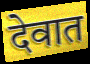
देवात